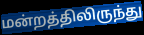
மன்றத்திலிருந்து